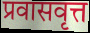
प्रवासवृत्त